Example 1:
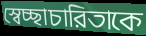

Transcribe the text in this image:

স্বেচ্ছাচারিতাকে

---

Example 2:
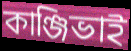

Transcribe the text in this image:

কাঞ্জিভাই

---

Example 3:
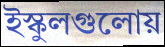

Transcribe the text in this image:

ইস্কুলগুলোয়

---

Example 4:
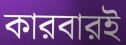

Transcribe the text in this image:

কারবারই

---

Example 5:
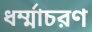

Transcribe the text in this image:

ধর্ম্মাচরণ